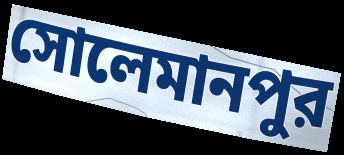
সোলেমানপুর